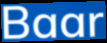
Baar